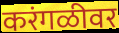
करंगळीवर